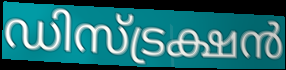
ഡിസ്ട്രക്ഷൻ